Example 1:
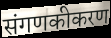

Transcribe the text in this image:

संगणकीकरण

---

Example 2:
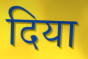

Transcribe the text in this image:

दिया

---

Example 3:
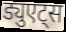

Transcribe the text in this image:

ड्युएट्स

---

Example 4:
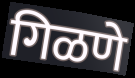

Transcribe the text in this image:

गिळणे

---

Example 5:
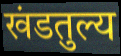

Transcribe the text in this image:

खंडतुल्य